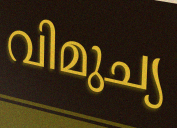
വിമുച്യ